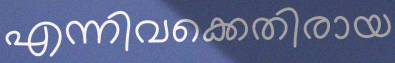
എന്നിവക്കെതിരായ